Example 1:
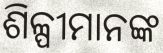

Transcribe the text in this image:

ଶିଳ୍ପୀମାନଙ୍କ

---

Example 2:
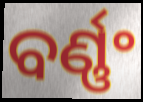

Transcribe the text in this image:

ବର୍ଣ୍ଣଂ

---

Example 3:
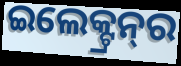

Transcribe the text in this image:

ଇଲେକ୍ଟ୍ରନ୍‌ର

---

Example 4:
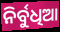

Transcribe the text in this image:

ନିର୍ବୁଧିଆ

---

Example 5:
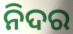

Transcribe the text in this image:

ନିଦର